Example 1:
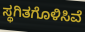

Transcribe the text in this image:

ಸ್ಥಗಿತಗೊಳಿಸಿವೆ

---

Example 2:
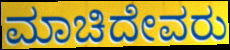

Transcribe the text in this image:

ಮಾಚಿದೇವರು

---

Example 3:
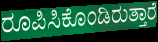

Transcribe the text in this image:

ರೂಪಿಸಿಕೊಂಡಿರುತ್ತಾರೆ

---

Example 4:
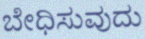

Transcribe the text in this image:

ಬೇಧಿಸುವುದು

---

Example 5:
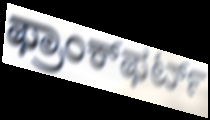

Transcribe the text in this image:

ಫ್ರಾಂಕ್‌ಫರ್ಟ್